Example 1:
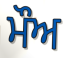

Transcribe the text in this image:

ਮੌਅ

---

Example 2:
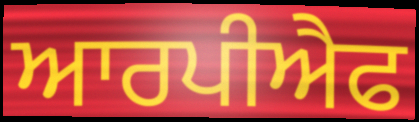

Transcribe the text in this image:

ਆਰਪੀਐਫ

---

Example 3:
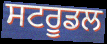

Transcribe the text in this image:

ਸਟਰੂਡਲ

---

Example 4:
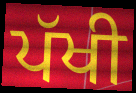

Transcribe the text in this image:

ਪੱਖੀ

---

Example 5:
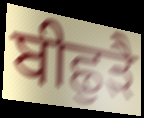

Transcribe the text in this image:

ਬੀਛੁੜੈ